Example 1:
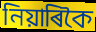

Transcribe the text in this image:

নিয়াৰিকৈ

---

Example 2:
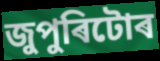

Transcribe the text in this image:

জুপুৰিটোৰ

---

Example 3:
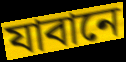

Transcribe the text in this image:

যাবানে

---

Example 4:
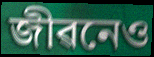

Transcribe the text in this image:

জীৱনেও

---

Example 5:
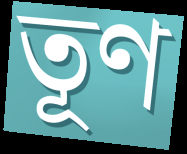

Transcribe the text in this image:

তূণ